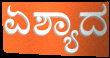
ಏಶ್ಯಾದ